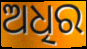
ଅଧିର